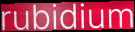
rubidium